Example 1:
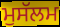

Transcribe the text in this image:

ਮੁਸੱਲਮ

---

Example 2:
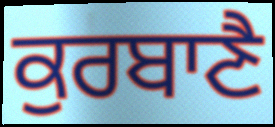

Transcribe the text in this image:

ਕੁਰਬਾਣੈ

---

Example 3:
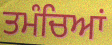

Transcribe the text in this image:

ਤਮੰਚਿਆਂ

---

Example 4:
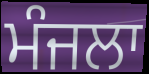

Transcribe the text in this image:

ਮੰਜਲਾ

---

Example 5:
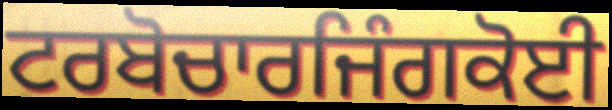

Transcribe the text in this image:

ਟਰਬੋਚਾਰਜਿੰਗਕੋਈ